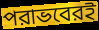
পরাভবেরই